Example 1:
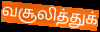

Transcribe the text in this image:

வசூலித்துக்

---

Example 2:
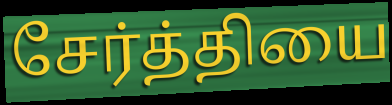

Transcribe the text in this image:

சேர்த்தியை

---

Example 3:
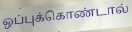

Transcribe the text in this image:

ஒப்புக்கொண்டால்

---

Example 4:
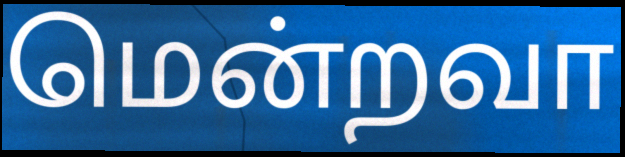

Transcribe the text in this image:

மென்றவா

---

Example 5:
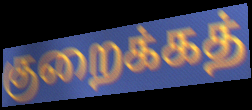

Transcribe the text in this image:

குறைக்கத்